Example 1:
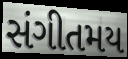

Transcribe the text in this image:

સંગીતમય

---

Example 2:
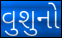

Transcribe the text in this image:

વુશુનો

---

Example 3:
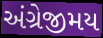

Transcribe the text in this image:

અંગ્રેજીમય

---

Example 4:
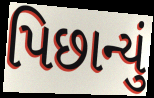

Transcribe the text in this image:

પિછાન્યું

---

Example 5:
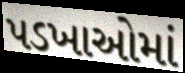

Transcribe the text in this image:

પડખાઓમાં